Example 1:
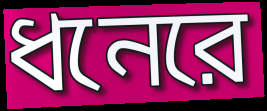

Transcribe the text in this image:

ধনেরে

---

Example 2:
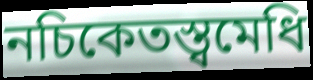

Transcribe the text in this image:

নচিকেতস্ত্বমেধি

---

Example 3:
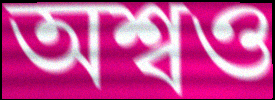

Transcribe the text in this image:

অশ্বও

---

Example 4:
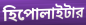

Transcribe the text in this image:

হিপোলাইটার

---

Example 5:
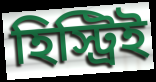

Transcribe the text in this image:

হিস্ট্রিই